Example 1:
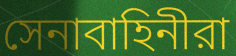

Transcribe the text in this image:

সেনাবাহিনীরা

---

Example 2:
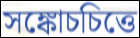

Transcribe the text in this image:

সঙ্কোচচিত্তে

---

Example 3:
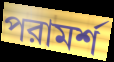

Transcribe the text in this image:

পরামর্শ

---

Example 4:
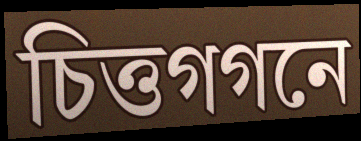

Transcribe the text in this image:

চিত্তগগনে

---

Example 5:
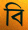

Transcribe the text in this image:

বি